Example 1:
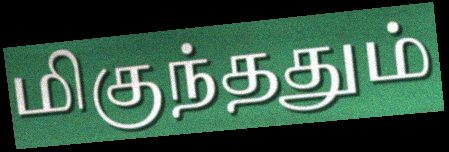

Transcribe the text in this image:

மிகுந்ததும்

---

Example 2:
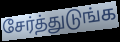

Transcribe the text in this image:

சேர்த்துடுங்க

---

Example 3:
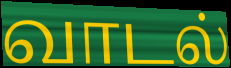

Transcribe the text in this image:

வாடல்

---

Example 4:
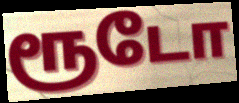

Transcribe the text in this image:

ரூடோ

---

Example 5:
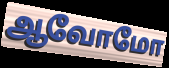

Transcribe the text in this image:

ஆவோமோ